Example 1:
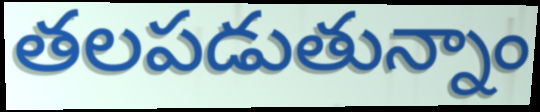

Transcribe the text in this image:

తలపడుతున్నాం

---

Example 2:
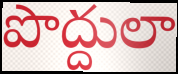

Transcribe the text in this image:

పొద్దులా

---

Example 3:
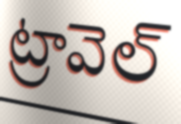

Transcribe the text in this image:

ట్రావెల్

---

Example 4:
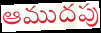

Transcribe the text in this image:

ఆముదపు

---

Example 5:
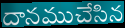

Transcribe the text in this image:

దానముచేసిన